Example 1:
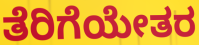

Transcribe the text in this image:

ತೆರಿಗೆಯೇತರ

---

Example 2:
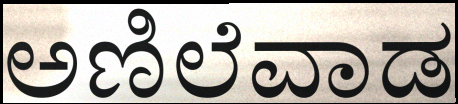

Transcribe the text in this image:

ಅಣಿಲೆವಾಡ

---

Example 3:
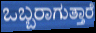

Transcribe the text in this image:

ಒಬ್ಬರಾಗುತ್ತಾರೆ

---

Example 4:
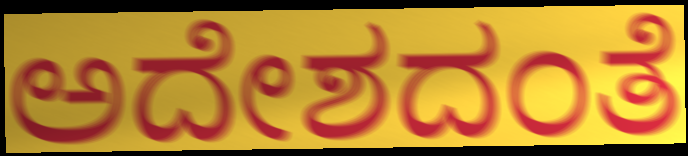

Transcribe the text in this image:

ಅದೇಶದಂತೆ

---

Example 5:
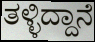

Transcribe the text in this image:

ತಳ್ಳಿದ್ದಾನೆ